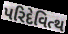
પરિદેવિત્થ